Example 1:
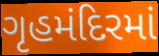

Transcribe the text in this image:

ગૃહમંદિરમાં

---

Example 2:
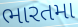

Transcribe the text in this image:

ભારતમા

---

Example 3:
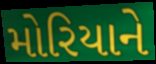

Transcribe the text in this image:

મોરિયાને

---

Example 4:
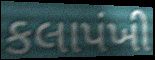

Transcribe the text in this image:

કલાપંખી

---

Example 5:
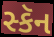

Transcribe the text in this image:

સ્કૅન